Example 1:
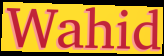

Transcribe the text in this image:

Wahid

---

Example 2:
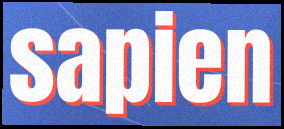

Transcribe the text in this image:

sapien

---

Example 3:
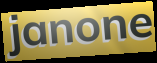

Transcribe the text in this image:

janone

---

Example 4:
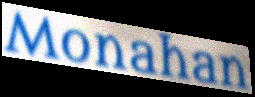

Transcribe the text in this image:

Monahan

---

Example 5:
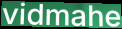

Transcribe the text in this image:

vidmahe